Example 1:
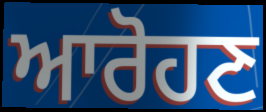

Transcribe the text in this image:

ਆਰੋਹਣ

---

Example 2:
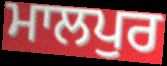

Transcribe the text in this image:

ਮਾਲਪੁਰ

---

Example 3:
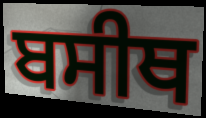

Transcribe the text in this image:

ਬਸੀਥ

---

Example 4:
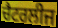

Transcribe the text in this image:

ਚੈਟਰਲੀਜ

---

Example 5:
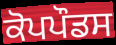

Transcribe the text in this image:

ਕੋਪਪੌਡਸ